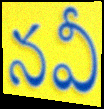
నవీ